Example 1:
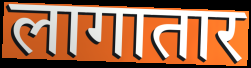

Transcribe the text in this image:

लागातार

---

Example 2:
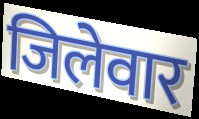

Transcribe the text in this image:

जिलेवार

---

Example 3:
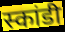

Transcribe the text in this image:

स्कांडी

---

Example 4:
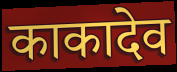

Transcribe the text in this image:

काकादेव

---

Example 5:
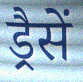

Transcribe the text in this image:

ड्रैसें